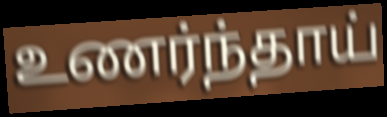
உணர்ந்தாய்